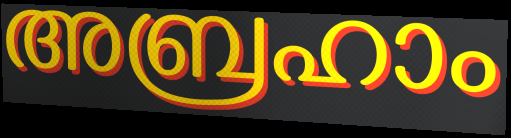
അബ്രഹാം